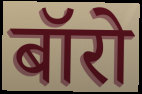
बॉरो